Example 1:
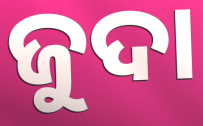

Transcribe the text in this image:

ଜୁଦା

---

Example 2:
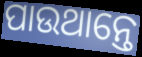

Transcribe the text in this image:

ପାଉଥାନ୍ତେ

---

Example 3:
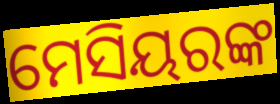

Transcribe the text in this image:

ମେସିୟରଙ୍କ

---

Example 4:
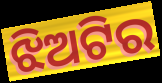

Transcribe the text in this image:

ଝିଅଟିର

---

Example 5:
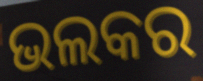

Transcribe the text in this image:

ଭଲକର